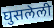
घुसलेली